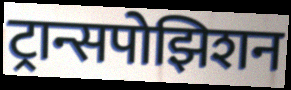
ट्रान्सपोझिशन